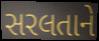
સરલતાને